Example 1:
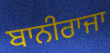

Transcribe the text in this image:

ਬਾਨੀਰਾਜਾ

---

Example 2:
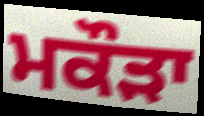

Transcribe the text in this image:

ਮਕੌੜਾ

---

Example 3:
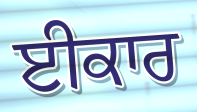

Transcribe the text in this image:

ਈਕਾਰ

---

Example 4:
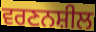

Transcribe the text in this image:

ਵਰਣਨਸ਼ੀਲ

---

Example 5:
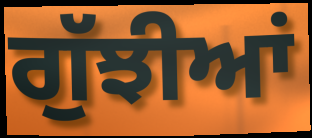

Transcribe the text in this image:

ਗੁੱਝੀਆਂ